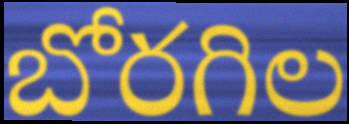
బోరగిల